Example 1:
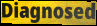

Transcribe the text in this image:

Diagnosed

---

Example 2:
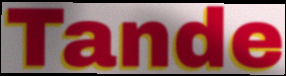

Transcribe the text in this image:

Tande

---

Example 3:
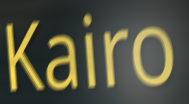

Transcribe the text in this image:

Kairo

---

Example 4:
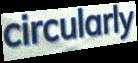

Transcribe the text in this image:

circularly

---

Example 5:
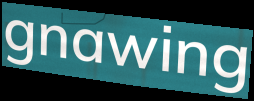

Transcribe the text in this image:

gnawing